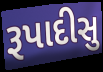
રૂપાદીસુ